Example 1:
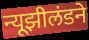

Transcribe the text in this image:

न्यूझीलंडने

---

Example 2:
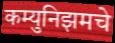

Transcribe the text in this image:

कम्युनिझमचे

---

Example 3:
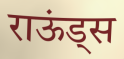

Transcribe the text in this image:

राऊंड्स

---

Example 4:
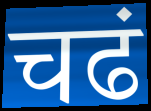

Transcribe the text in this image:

चढं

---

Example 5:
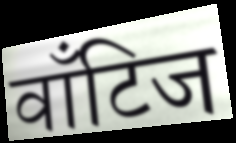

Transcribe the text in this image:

वाँटिज